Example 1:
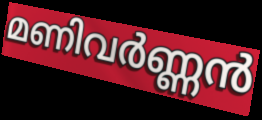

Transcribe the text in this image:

മണിവർണ്ണൻ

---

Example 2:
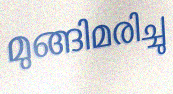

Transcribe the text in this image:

മുങ്ങിമരിച്ചു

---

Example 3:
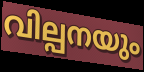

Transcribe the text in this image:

വില്പനയും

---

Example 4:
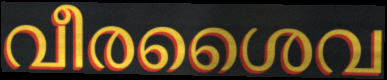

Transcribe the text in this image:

വീരശൈവ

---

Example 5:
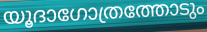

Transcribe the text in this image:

യൂദാഗോത്രത്തോടും